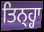
ਤਿਨ੍ਹ੍ਹਾ